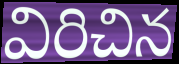
విరిచిన